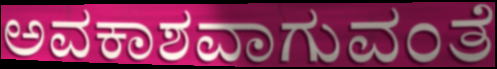
ಅವಕಾಶವಾಗುವಂತೆ